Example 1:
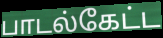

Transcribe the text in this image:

பாடல்கேட்ட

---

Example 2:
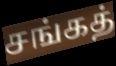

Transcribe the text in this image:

சங்கத்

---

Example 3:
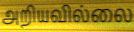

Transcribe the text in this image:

அறியவில்லை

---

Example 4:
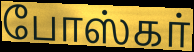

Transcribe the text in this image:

போஸ்கர்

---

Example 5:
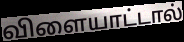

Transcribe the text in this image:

விளையாட்டால்